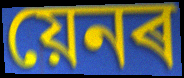
য়েনৰ